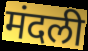
मंदली